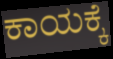
ಕಾಯಕ್ಕೆ